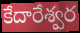
కేదారేశ్వర